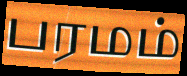
பரமம்